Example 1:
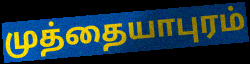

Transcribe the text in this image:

முத்தையாபுரம்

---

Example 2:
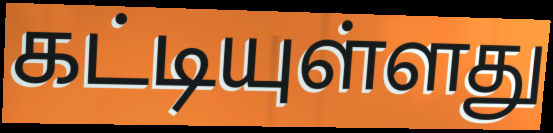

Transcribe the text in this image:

கட்டியுள்ளது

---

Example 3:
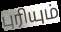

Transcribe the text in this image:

புரியும்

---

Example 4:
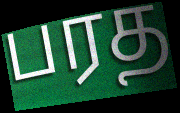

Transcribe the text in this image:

பரத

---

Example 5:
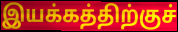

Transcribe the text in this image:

இயக்கத்திற்குச்